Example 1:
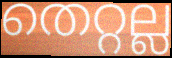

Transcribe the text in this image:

തെറ്റല്ല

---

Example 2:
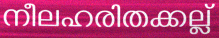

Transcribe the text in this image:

നീലഹരിതക്കല്ല്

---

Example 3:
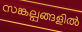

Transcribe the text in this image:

സങ്കല്പങ്ങളിൽ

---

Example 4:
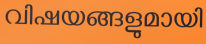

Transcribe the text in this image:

വിഷയങ്ങളുമായി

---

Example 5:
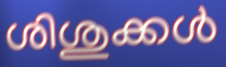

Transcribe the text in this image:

ശിശുക്കൾ